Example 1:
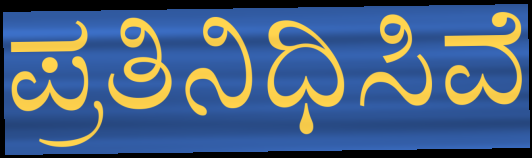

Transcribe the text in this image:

ಪ್ರತಿನಿಧಿಸಿವೆ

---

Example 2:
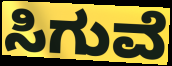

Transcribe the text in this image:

ಸಿಗುವೆ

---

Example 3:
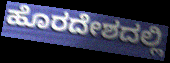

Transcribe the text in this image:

ಹೊರದೇಶದಲ್ಲಿ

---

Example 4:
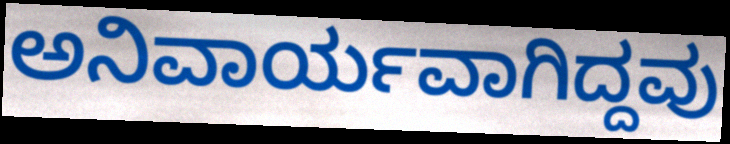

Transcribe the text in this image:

ಅನಿವಾರ್ಯವಾಗಿದ್ದವು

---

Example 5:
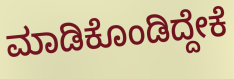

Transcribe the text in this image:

ಮಾಡಿಕೊಂಡಿದ್ದೇಕೆ